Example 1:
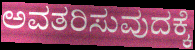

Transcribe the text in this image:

ಅವತರಿಸುವುದಕ್ಕೆ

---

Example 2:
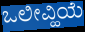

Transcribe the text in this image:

ಒಲೀವ್ಹಿಯೆ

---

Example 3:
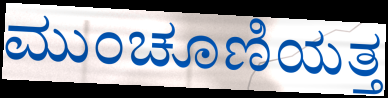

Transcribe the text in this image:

ಮುಂಚೂಣಿಯತ್ತ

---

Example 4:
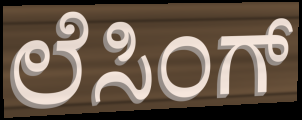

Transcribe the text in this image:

ಲೆಸಿಂಗ್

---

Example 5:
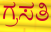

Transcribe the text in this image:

ಗ್ರಸತಿ